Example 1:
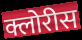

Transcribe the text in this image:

क्लोरीस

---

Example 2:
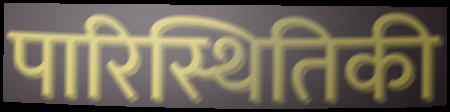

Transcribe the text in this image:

पारिस्थितिकी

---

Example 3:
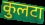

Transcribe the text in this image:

कुलटा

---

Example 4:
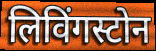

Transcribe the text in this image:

लिविंगस्टोन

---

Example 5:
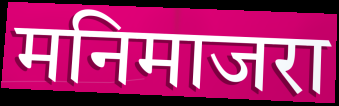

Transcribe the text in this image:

मनिमाजरा